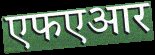
एफएआर